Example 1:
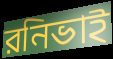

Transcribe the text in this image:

রনিভাই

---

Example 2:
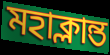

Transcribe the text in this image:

মহাক্লান্ত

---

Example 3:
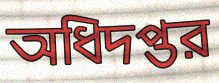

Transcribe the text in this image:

অধিদপ্তর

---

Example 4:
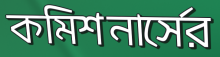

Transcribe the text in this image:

কমিশনার্সের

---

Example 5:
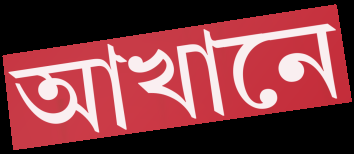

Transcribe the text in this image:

আখানে